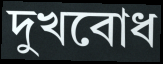
দুখবোধ